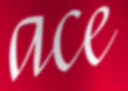
ace